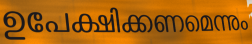
ഉപേക്ഷിക്കണമെന്നും